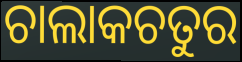
ଚାଲାକଚତୁର